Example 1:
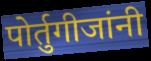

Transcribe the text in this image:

पोर्तुगीजांनी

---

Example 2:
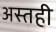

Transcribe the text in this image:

अस्तही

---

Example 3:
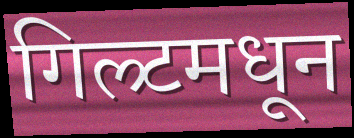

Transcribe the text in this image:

गिल्टमधून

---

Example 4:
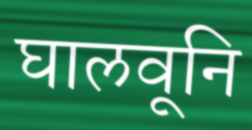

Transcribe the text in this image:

घालवूनि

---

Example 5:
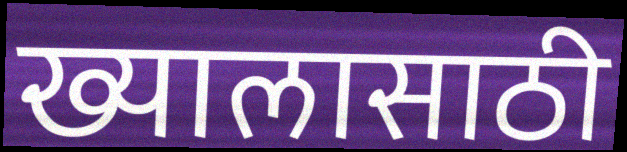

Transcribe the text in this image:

ख्यालासाठी